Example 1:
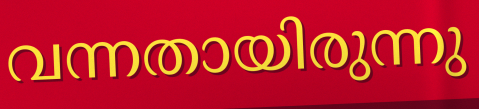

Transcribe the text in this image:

വന്നതായിരുന്നു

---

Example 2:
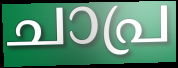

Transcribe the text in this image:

ചാപ്ര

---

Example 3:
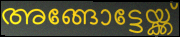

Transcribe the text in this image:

അങ്ങോട്ടേയ്ക്ക്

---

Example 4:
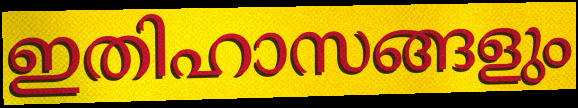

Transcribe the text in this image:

ഇതിഹാസങ്ങളും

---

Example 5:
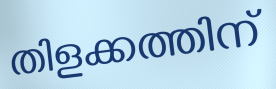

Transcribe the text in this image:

തിളക്കത്തിന്